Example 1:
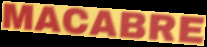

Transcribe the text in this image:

MACABRE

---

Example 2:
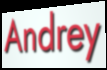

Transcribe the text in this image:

Andrey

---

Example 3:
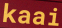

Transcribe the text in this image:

kaai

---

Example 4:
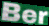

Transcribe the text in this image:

Ber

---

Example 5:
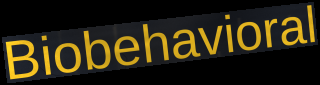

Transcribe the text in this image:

Biobehavioral